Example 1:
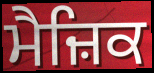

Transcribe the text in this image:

ਮੈਜ਼ਿਕ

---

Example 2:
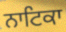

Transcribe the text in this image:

ਨਾਟਿਕਾ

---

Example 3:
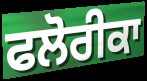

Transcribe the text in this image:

ਫਲੋਰੀਕਾ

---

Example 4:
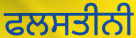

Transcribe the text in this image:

ਫਲਸਤੀਨੀ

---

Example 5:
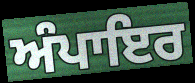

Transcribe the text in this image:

ਅੰਪਾਇਰ